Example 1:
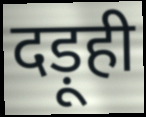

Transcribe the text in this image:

दड़ूही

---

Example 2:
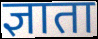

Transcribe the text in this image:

ज्ञाता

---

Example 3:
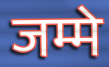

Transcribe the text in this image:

जम्मे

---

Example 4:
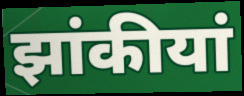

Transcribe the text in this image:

झांकीयां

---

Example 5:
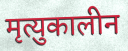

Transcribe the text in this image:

मृत्युकालीन